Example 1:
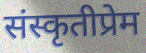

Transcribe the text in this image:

संस्कृतीप्रेम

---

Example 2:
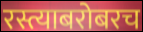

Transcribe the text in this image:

रस्त्याबरोबरच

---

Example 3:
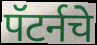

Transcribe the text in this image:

पॅटर्नचे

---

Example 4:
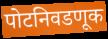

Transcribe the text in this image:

पोटनिवडणूक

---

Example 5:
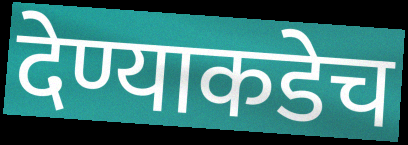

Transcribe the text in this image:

देण्याकडेच